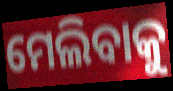
ମେଲିବାକୁ